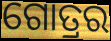
ଗୋତ୍ରର